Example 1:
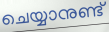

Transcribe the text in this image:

ചെയ്യാനുണ്ട്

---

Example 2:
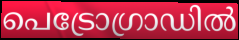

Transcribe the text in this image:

പെട്രോഗ്രാഡിൽ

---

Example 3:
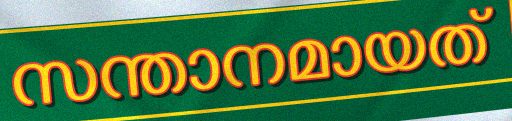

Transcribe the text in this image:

സന്താനമായത്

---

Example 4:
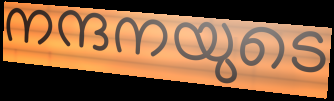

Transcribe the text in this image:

നന്ദനയുടെ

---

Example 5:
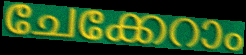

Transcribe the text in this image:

ചേക്കേറാം